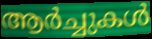
ആർച്ചുകൾ